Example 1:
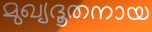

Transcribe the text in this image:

മുഖ്യദൂതനായ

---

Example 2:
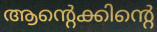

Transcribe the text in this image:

ആന്റെക്കിന്റെ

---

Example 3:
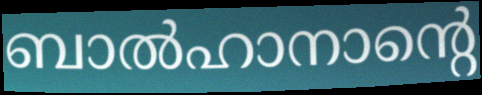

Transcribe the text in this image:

ബാൽഹാനാന്റെ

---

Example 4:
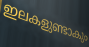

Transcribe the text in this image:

ഇലകളുണ്ടാകും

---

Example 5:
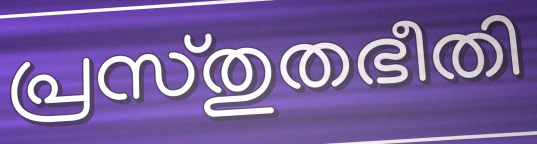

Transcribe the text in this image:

പ്രസ്തുതഭീതി